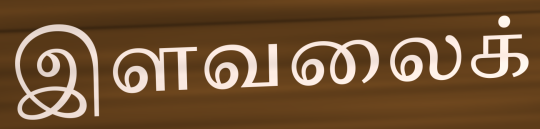
இளவலைக்